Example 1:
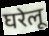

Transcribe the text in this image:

घरेलू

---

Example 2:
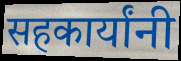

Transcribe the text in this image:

सहकार्यांनी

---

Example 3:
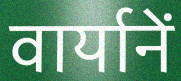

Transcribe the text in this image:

वार्यानें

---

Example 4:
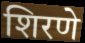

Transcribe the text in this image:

शिरणे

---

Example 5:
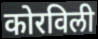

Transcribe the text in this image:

कोरविली